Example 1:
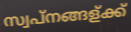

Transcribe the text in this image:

സ്വപ്നങ്ങള്ക്ക്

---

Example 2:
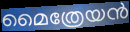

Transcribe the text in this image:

മൈത്രേയൻ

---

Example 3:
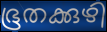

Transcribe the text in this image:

ഭൂതക്കുഴി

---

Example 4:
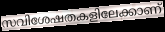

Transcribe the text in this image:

സവിശേഷതകളിലേക്കാണ്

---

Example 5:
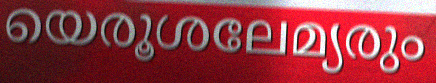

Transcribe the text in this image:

യെരൂശലേമ്യരും